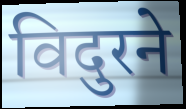
विदुरने